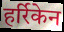
हर्रिकेन